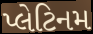
પ્લેટિનમ